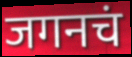
जगनचं